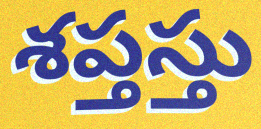
శప్తస్తు